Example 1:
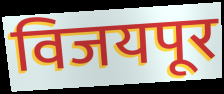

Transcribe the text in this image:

विजयपूर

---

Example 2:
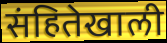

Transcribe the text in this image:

संहितेखाली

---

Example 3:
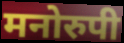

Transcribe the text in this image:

मनोरुपी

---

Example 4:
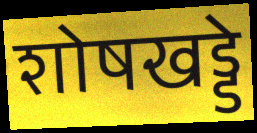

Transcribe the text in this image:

शोषखड्डे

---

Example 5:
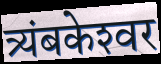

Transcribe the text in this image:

त्र्यंबकेश्वर